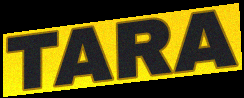
TARA